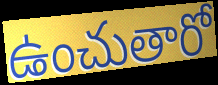
ఉంచుతారో